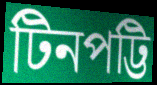
টিনপট্টি